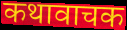
कथावाचक